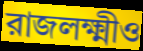
রাজলক্ষ্মীও